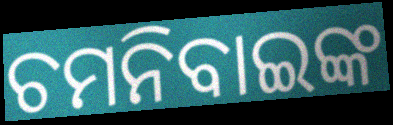
ଚମନିବାଇଙ୍କ